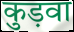
कुड़वा